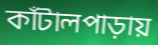
কাঁটালপাড়ায়